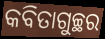
କବିତାଗୁଚ୍ଛର